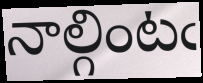
నాల్గింటఁ